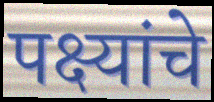
पक्ष्यांचे